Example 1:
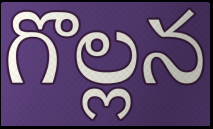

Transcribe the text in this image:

గొల్లన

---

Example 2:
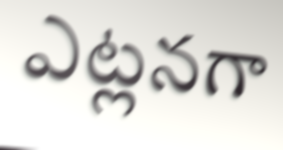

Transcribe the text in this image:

ఎట్లనగా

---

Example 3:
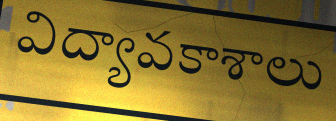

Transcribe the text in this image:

విద్యావకాశాలు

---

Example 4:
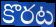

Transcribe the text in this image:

కొరట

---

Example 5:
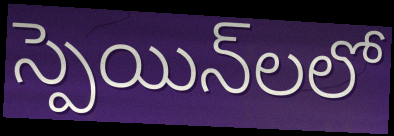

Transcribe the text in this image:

స్పెయిన్‌లలో